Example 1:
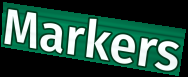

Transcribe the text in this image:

Markers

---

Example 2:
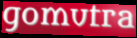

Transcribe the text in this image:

gomutra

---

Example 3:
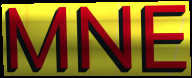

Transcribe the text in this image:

MNE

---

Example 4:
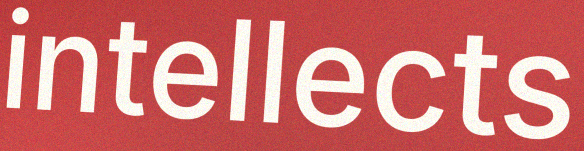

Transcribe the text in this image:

intellects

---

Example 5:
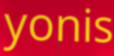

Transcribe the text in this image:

yonis